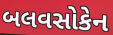
બલવસોકેન